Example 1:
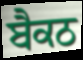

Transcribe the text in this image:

ਬੈਕਠ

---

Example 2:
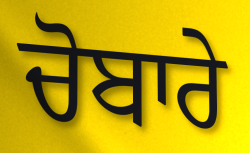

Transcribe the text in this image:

ਚੋਬਾਰੇ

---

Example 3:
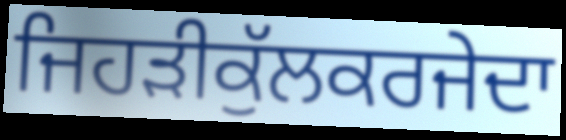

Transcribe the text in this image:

ਜਿਹੜੀਕੁੱਲਕਰਜੇਦਾ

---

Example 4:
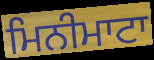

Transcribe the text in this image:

ਮਿਨੀਮਾਟਾ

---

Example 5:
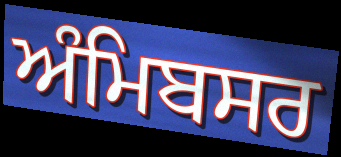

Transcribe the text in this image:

ਅੰਮਿਬਸਰ